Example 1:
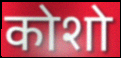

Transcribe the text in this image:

कोशो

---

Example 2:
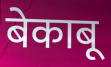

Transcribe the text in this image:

बेकाबू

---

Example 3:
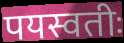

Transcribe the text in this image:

पयस्वतीः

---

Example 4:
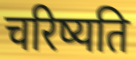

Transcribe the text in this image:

चरिष्यति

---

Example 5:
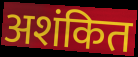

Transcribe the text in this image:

अशंकित